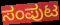
ಸಂಪುಟ